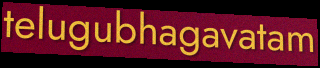
telugubhagavatam